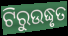
ଟିରୁଉଦ୍ଧୃତ